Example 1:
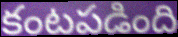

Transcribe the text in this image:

కంటపడింది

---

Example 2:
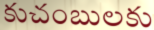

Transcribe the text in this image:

కుచంబులకు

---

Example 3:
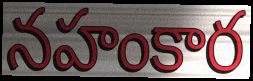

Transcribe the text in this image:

నహంకార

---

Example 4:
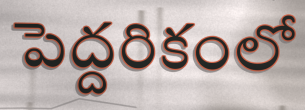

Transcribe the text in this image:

పెద్దరికంలో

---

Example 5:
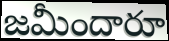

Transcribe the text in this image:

జమీందారూ